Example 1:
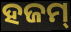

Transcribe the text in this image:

ହଜମ୍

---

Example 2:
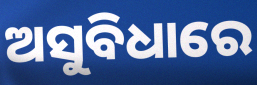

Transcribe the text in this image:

ଅସୁବିଧାରେ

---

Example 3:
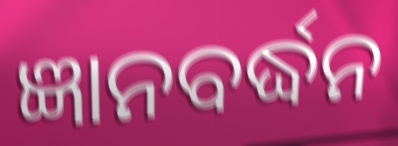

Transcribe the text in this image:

ଜ୍ଞାନବର୍ଦ୍ଧନ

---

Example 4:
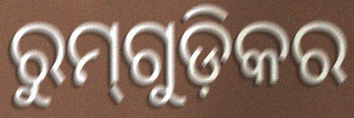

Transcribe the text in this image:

ରୁମ୍‌ଗୁଡ଼ିକର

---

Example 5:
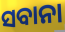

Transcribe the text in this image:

ସବାନା